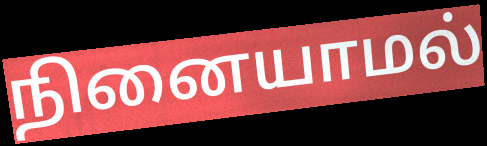
நினையாமல்